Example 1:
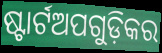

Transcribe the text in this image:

ଷ୍ଟାର୍ଟଅପଗୁଡ଼ିକର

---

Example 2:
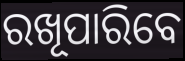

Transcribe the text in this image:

ରଖୂପାରିବେ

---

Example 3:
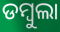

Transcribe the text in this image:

ଡମ୍ୱୁଲା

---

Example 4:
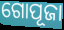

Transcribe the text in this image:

ଗୋପୂଜା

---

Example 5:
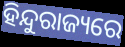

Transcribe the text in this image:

ହିନ୍ଦୁରାଜ୍ୟରେ